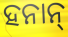
ହନାନ୍